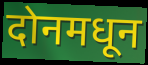
दोनमधून